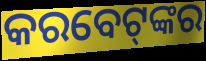
କରବେଟ୍‌ଙ୍କର